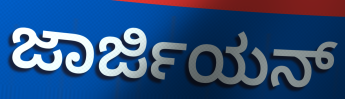
ಜಾರ್ಜಿಯನ್